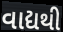
વાદ્યથી